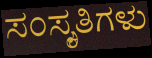
ಸಂಸ್ಕೃತಿಗಳು